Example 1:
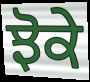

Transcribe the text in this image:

ਝੋਕੇ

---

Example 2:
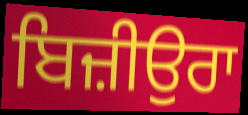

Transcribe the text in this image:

ਬਿਜ਼ੀਉਰਾ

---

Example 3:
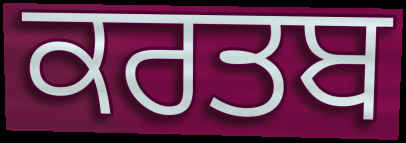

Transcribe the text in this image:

ਕਰਤਬ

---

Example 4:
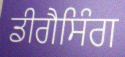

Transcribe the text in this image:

ਡੀਗੈਸਿੰਗ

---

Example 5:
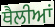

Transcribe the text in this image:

ਥੈਲੀਆਂ